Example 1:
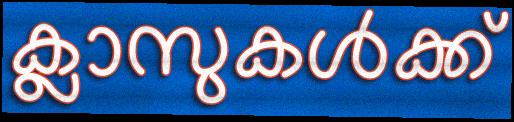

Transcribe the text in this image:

ക്ലാസുകൾക്ക്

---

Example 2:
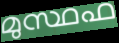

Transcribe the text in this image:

മുസ്ഥഫ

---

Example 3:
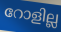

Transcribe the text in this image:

റോളില്ല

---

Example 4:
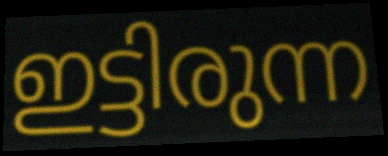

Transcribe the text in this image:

ഇട്ടിരുന്ന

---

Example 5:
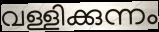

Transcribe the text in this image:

വള്ളിക്കുന്നം